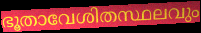
ഭൂതാവേശിതസ്ഥലവും